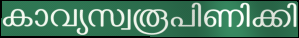
കാവ്യസ്വരൂപിണിക്കി